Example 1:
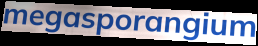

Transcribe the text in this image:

megasporangium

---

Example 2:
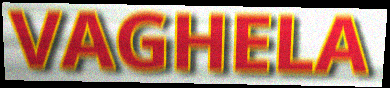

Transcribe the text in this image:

VAGHELA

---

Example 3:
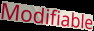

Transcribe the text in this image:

Modifiable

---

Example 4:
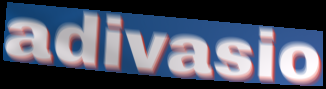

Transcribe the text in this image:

adivasio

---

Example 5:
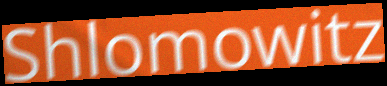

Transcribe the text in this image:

Shlomowitz